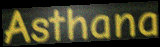
Asthana